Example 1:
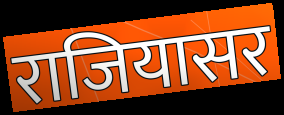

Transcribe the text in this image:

राजियासर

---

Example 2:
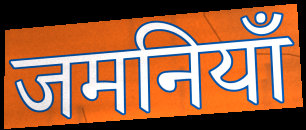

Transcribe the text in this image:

जमनियाँ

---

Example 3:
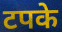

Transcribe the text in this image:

टपके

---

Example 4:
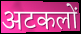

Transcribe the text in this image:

अटकलों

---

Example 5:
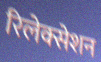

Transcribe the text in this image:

रिलेक्सेशन